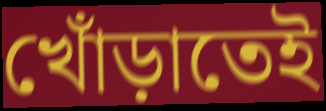
খোঁড়াতেই